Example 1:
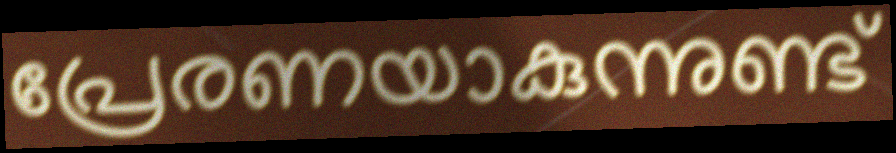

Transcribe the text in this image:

പ്രേരണയാകുന്നുണ്ട്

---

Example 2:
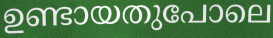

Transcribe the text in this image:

ഉണ്ടായതുപോലെ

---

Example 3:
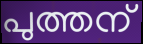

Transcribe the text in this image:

പുത്തന്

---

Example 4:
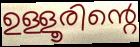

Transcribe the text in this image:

ഉള്ളൂരിന്റെ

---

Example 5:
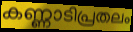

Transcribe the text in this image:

കണ്ണാടിപ്രതലം